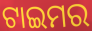
ଟାଇମର